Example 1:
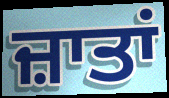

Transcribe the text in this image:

ਜ਼ਾਤਾਂ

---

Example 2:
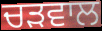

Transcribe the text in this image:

ਚੜਵਾਲ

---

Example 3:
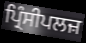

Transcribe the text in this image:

ਪ੍ਰਿੰਸੀਪਲਜ਼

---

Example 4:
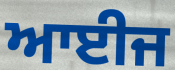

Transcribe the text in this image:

ਆਈਜ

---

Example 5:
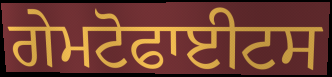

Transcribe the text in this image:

ਗੇਮਟੋਫਾਈਟਸ